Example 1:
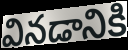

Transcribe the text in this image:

వినడానికి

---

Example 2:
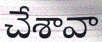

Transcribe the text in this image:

చేశావా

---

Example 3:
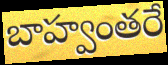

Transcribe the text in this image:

బాహ్వంతరే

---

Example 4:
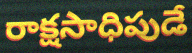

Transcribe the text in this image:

రాక్షసాధిపుడే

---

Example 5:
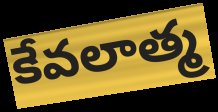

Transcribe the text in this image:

కేవలాత్మ